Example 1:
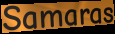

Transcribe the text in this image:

Samaras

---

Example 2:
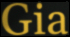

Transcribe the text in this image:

Gia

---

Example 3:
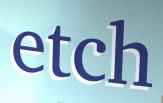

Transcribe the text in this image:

etch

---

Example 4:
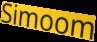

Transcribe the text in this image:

Simoom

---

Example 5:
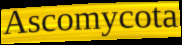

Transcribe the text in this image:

Ascomycota